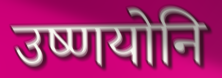
उष्णयोनि